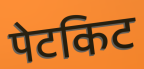
पेटकिट